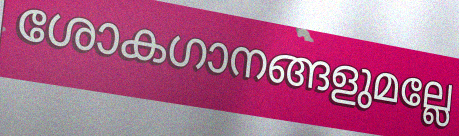
ശോകഗാനങ്ങളുമല്ലേ